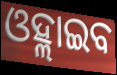
ଓହ୍ଲାଇବ